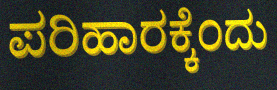
ಪರಿಹಾರಕ್ಕೆಂದು